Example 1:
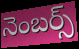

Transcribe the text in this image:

నెంబర్స్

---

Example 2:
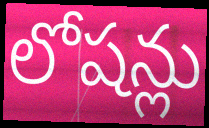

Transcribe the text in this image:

లోషన్లు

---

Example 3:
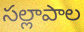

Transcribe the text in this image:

సల్లాపాల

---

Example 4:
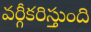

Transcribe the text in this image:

వర్గీకరిస్తుంది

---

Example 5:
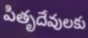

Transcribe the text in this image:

పితృదేవులకు